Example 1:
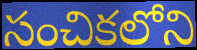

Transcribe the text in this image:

సంచికలోని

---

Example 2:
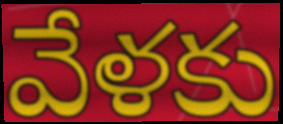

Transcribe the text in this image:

వేళకు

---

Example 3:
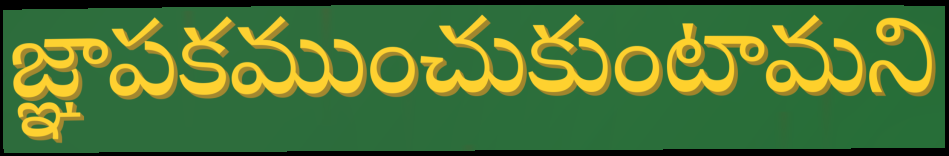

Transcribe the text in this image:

జ్ఞాపకముంచుకుంటామని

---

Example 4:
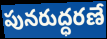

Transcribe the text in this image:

పునరుద్ధరణే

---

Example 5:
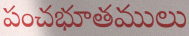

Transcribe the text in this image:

పంచభూతములు